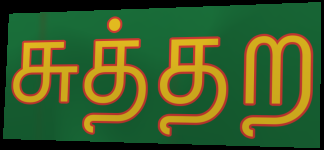
சுத்தற